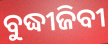
ବୁଦ୍ଧୀଜିବୀ